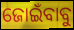
ଜୋଇଁବାବୁ